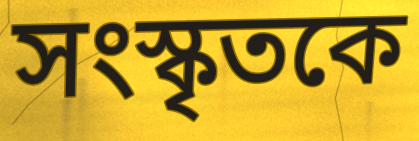
সংস্কৃতকে